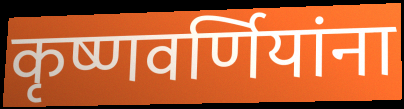
कृष्णवर्णियांना